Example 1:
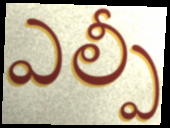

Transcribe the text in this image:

ఎల్పీ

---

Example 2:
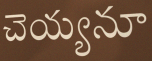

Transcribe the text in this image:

చెయ్యనూ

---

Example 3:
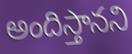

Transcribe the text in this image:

అందిస్తానని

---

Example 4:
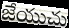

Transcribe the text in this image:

జేయుచు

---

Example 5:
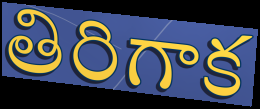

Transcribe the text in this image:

తిరిగాక